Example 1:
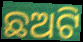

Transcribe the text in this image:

ଛଅଟି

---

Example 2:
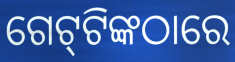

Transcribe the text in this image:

ଗେଟ୍‌ଟିଙ୍କଠାରେ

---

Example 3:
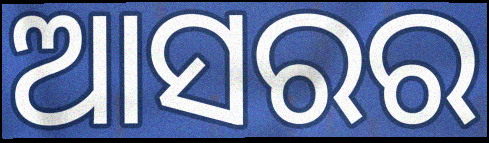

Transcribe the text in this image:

ଆସରର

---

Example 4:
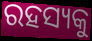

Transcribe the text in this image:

ରହସ୍ୟକୁ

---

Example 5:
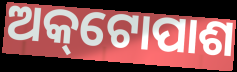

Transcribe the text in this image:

ଅକ୍‌ଟୋପାଶ